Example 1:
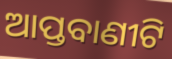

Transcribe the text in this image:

ଆପ୍ତବାଣୀଟି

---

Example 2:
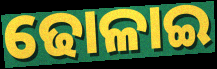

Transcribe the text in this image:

ଢୋଳାଇ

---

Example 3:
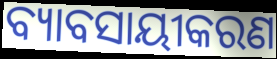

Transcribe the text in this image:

ବ୍ୟାବସାୟୀକରଣ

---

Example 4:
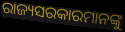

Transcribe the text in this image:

ରାଜ୍ୟସରକାରମାନଙ୍କୁ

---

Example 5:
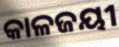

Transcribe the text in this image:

କାଳଜୟୀ